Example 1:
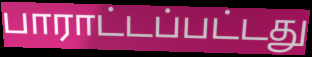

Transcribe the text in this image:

பாராட்டப்பட்டது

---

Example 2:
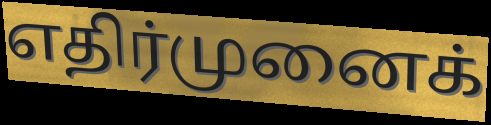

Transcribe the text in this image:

எதிர்முனைக்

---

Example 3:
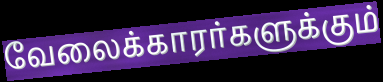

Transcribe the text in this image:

வேலைக்காரர்களுக்கும்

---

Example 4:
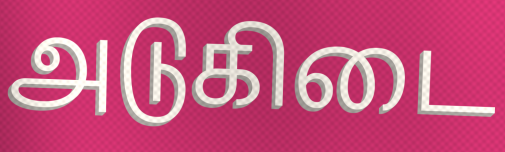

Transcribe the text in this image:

அடுகிடை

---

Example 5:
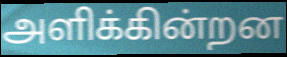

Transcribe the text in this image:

அளிக்கின்றன